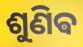
ଶୁଣିଵ